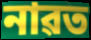
নাৱত